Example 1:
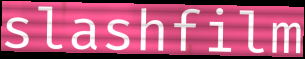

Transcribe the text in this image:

slashfilm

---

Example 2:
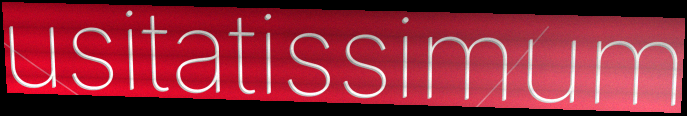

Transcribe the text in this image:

usitatissimum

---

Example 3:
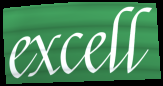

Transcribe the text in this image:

excell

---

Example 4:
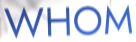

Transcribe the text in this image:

WHOM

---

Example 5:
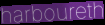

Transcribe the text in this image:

harboureth